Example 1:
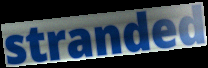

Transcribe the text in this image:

stranded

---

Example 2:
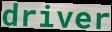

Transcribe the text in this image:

driver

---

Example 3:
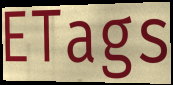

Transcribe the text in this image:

ETags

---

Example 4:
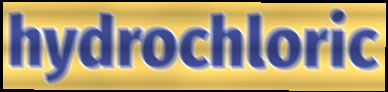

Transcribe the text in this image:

hydrochloric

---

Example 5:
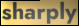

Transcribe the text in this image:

sharply